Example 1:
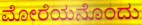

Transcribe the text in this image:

ಮೋರೆಯನೊಂದು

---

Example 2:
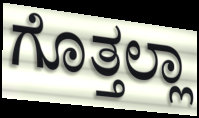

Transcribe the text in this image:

ಗೊತ್ತಲ್ಲಾ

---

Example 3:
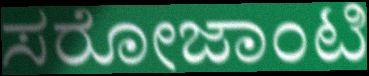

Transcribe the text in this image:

ಸರೋಜಾಂಟಿ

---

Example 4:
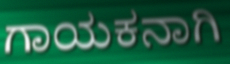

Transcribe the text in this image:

ಗಾಯಕನಾಗಿ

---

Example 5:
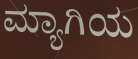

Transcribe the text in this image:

ಮ್ಯಾಗಿಯ